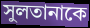
সুলতানাকে